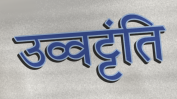
उव्वट्टंति